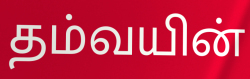
தம்வயின்